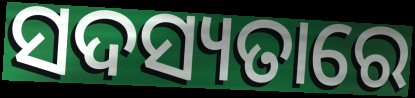
ସଦସ୍ୟତାରେ